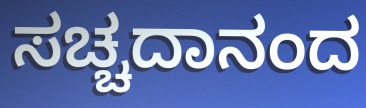
ಸಚ್ಚದಾನಂದ